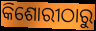
କିଶୋରୀଠାରୁ